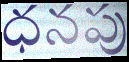
ధనపు